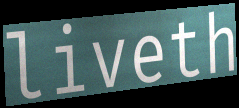
liveth